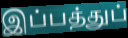
இப்பத்துப்